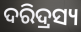
ଦରିଦ୍ରସ୍ୟ